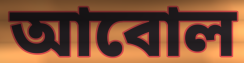
আবোল